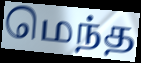
மெந்த